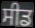
ਸੀਡ